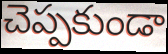
చెప్పకుండా